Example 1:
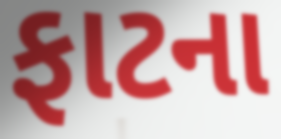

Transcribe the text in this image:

ફાટના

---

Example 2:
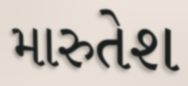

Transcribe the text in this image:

મારુતેશ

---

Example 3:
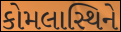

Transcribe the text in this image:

કોમલાસ્થિને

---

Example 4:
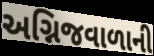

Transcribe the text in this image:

અગ્નિજવાળાની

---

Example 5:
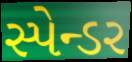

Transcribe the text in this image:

સ્પેન્ડર